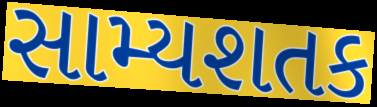
સામ્યશતક